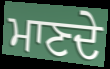
ਮਾਣਦੇ